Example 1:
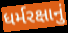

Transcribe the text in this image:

ધર્મરક્ષાનું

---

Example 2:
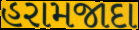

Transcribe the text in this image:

હરામજાદા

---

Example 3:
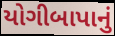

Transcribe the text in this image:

યોગીબાપાનું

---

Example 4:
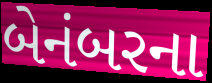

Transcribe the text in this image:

બેનંબરના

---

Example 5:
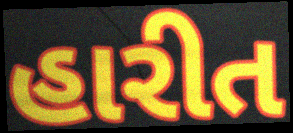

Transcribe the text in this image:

હારીત